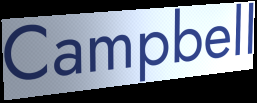
Campbell